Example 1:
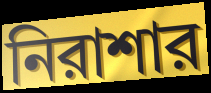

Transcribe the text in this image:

নিরাশার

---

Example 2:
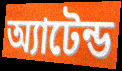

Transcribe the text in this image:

অ্যাটেন্ড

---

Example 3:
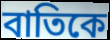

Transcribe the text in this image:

বাতিকে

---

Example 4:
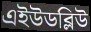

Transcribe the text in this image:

এইউডব্লিউ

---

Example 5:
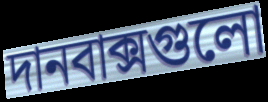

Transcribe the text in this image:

দানবাক্সগুলো